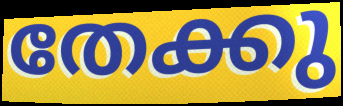
തേക്കു